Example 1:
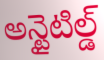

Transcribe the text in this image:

అన్టైటిల్డ్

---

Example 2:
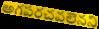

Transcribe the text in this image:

అగపరచవలెనని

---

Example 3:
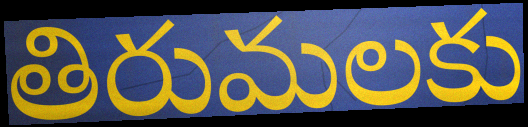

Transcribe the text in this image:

తిరుమలకు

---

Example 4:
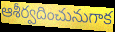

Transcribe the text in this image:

ఆశీర్వదించునుగాక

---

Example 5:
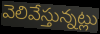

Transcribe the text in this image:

వెలివేస్తున్నట్లు